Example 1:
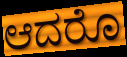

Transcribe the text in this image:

ಆದರೊ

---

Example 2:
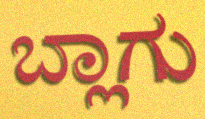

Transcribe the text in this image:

ಬ್ಲಾಗು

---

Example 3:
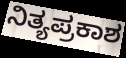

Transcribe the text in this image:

ನಿತ್ಯಪ್ರಕಾಶ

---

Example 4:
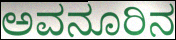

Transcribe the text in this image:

ಅವನೂರಿನ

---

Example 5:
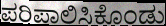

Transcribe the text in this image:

ಪರಿಪಾಲಿಸಿಕೊಂಡು